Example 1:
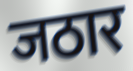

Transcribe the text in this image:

जठार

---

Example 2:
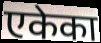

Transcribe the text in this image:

एकेका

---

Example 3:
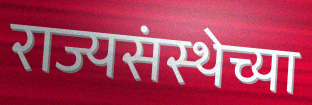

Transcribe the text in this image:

राज्यसंस्थेच्या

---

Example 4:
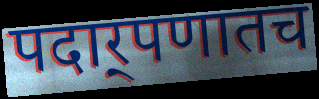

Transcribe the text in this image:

पदार्पणातच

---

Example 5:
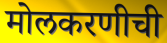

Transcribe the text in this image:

मोलकरणीची